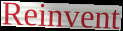
Reinvent